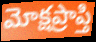
మోక్షప్రాప్తి